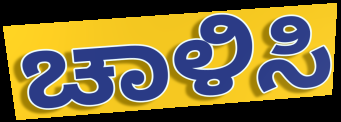
ಚಾಳಿಸಿ